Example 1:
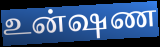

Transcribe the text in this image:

உன்ஷண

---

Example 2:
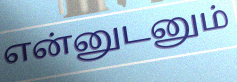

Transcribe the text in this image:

என்னுடனும்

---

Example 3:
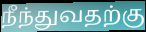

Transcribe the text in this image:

நீந்துவதற்கு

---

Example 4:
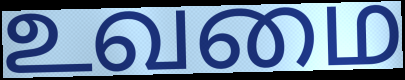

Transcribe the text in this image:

உவமை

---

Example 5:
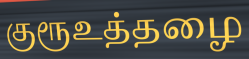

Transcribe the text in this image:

குரூஉத்தழை